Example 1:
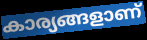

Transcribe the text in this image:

കാര്യങ്ങളാണ്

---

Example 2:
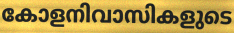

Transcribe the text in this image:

കോളനിവാസികളുടെ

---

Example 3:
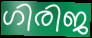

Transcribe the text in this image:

ഗിരിജ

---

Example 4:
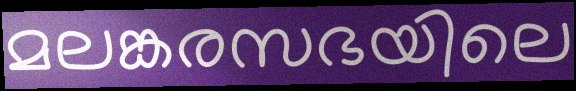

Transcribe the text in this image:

മലങ്കരസഭയിലെ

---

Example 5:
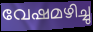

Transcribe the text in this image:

വേഷമഴിച്ചു